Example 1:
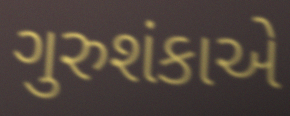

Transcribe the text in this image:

ગુરુશંકાએ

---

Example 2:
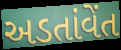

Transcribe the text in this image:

અડતાંવેંત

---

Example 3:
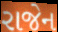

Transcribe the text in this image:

રાજેન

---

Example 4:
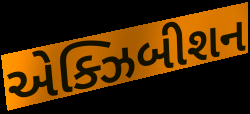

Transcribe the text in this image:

એક્ઝિબીશન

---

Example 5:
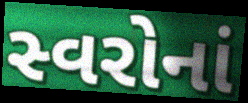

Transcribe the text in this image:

સ્વરોનાં